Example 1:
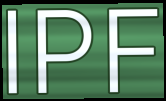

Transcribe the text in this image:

IPF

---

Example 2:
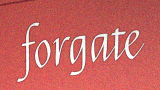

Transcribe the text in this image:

forgate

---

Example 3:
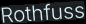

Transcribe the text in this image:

Rothfuss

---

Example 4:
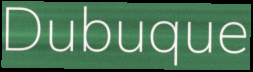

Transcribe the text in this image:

Dubuque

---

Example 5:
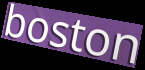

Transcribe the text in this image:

boston